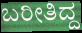
ಬರೀತಿದ್ದ